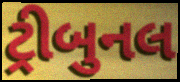
ટ્રીબુનલ